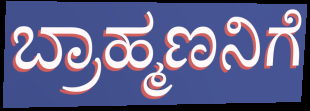
ಬ್ರಾಹ್ಮಣನಿಗೆ